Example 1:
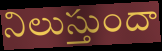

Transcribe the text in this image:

నిలుస్తుందా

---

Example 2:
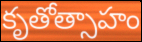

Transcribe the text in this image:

కృతోత్సాహం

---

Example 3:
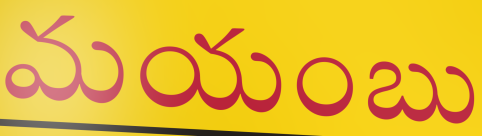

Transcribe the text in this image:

మయంబు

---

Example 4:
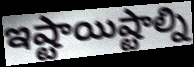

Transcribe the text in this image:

ఇష్టాయిష్టాల్ని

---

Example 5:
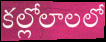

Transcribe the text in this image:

కల్లోలాలలో